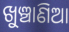
ଖୁଞ୍ଚାଣିଆ